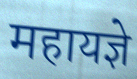
महायज्ञे